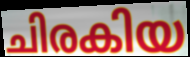
ചിരകിയ